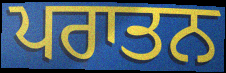
ਪਰਾਤਨ